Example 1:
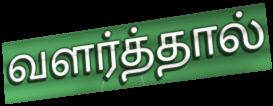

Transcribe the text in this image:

வளர்த்தால்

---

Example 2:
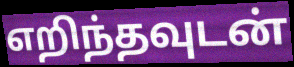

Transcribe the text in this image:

எறிந்தவுடன்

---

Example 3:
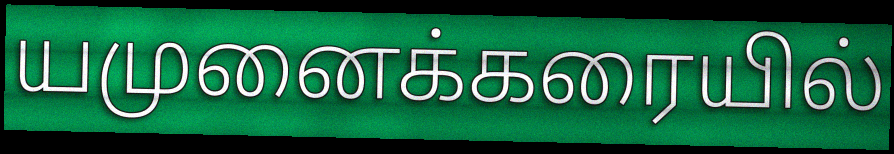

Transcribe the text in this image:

யமுனைக்கரையில்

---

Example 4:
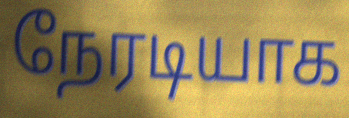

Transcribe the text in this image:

நேரடியாக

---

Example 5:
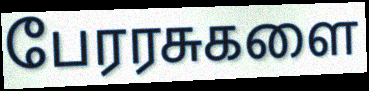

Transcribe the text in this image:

பேரரசுகளை